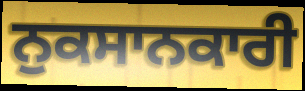
ਨੁਕਸਾਨਕਾਰੀ